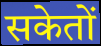
सकेतों